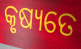
କୃଷ୍ୟତେ